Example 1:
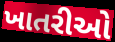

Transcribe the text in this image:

ખાતરીઓ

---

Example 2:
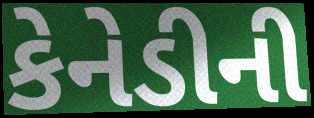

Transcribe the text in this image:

કેનેડીની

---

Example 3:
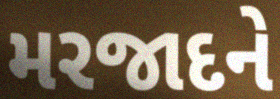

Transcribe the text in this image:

મરજાદને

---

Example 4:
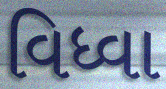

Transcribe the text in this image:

વિધ્વા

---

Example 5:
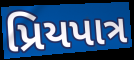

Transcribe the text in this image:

પ્રિયપાત્ર